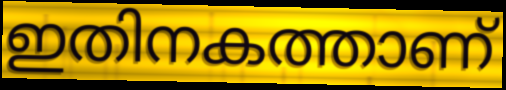
ഇതിനകത്താണ്